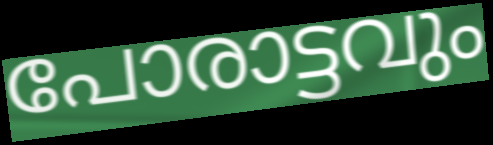
പോരാട്ടവും